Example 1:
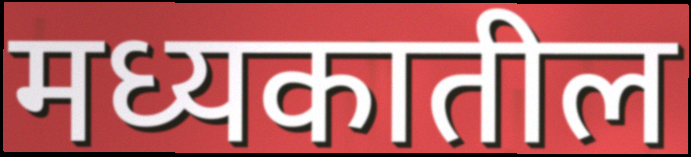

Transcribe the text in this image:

मध्यकातील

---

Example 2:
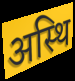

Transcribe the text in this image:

अस्थि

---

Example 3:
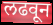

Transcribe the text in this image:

लढवून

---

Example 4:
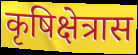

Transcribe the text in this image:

कृषिक्षेत्रास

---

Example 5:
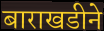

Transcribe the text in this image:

बाराखडीने